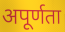
अपूर्णता